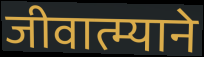
जीवात्म्याने